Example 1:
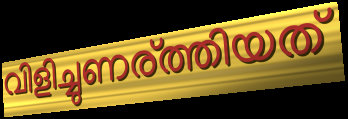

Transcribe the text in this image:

വിളിച്ചുണര്ത്തിയത്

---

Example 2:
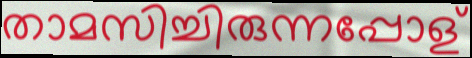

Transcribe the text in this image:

താമസിച്ചിരുന്നപ്പോള്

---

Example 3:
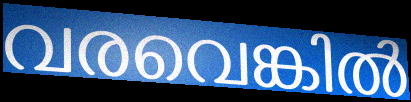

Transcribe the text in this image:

വരവെങ്കിൽ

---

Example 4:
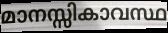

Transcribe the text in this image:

മാനസ്സികാവസ്ഥ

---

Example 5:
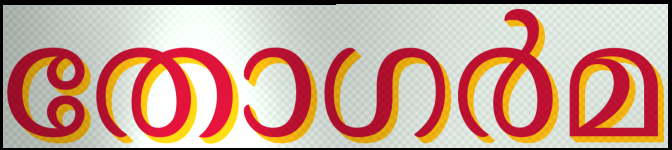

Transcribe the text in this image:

തോഗർമ